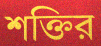
শক্তির